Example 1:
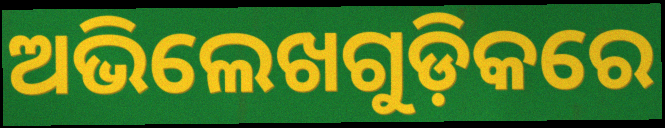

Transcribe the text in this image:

ଅଭିଲେଖଗୁଡ଼ିକରେ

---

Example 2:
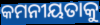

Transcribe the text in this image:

କମନୀୟତାକୁ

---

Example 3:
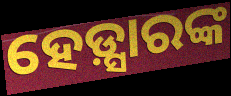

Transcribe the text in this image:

ହେଡ଼୍ସାରଙ୍କ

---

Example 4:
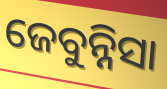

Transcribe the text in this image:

ଜେବୁନ୍ନିସା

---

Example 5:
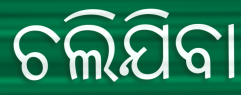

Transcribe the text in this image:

ଚଲିଯିବା